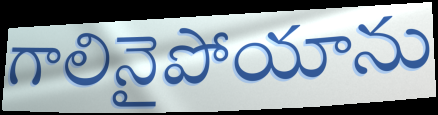
గాలినైపోయాను